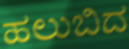
ಹಲುಬಿದ